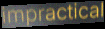
impractical